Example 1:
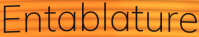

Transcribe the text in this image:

Entablature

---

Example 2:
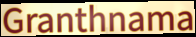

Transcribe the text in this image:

Granthnama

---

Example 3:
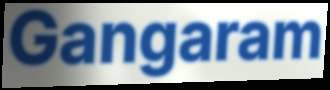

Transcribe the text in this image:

Gangaram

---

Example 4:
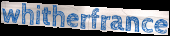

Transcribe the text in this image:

whitherfrance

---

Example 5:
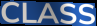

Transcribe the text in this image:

CLASS